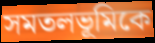
সমতলভূমিকে